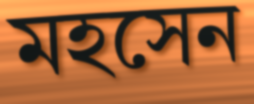
মহসেন